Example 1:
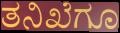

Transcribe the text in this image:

ತನಿಖೆಗೂ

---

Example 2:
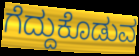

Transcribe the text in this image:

ಗೆದ್ದುಕೊಡುವ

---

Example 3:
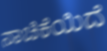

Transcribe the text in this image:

ನಾಚಿಕೆಯಿದೆ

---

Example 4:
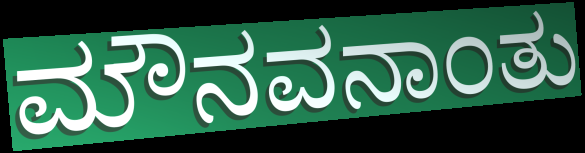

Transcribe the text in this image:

ಮೌನವನಾಂತು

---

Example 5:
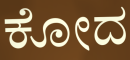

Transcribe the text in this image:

ಕೋದ